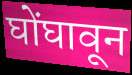
घोंघावून